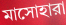
মাসোহারা